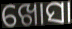
ଖୋସା